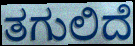
ತಗುಲಿದೆ